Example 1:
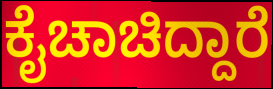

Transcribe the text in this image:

ಕೈಚಾಚಿದ್ದಾರೆ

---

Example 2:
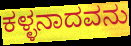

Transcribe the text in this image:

ಕಳ್ಳನಾದವನು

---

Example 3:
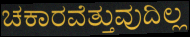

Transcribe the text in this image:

ಚಕಾರವೆತ್ತುವುದಿಲ್ಲ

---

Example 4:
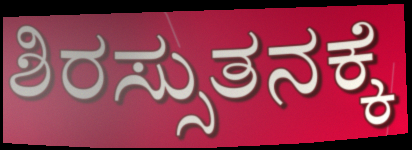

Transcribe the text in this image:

ಶಿರಸ್ಸುತನಕ್ಕೆ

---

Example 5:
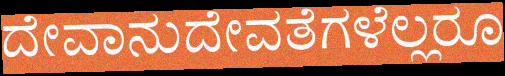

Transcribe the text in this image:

ದೇವಾನುದೇವತೆಗಳೆಲ್ಲರೂ